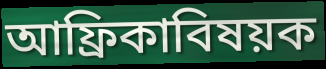
আফ্রিকাবিষয়ক